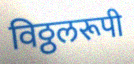
विठ्ठलरूपी